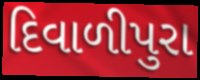
દિવાળીપુરા